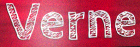
Verne